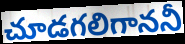
చూడగలిగాననీ